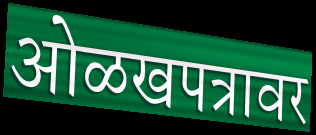
ओळखपत्रावर